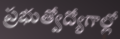
ప్రభుత్వోద్యోగాల్లో